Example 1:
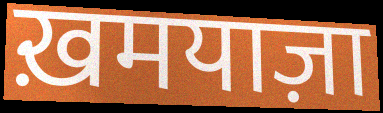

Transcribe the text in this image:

ख़मयाज़ा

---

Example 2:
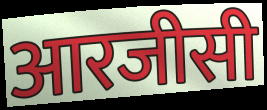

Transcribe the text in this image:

आरजीसी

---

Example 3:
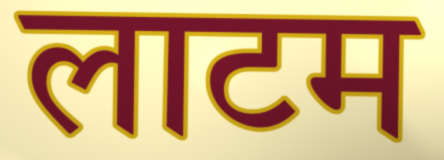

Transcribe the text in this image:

लाटम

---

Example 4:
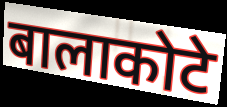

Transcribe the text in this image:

बालाकोटे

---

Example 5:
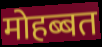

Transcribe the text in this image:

मोहब्‍बत